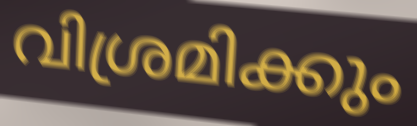
വിശ്രമിക്കും